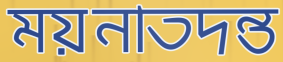
ময়নাতদন্ত